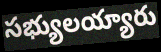
సభ్యులయ్యారు